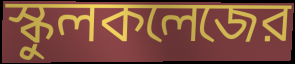
স্কুলকলেজের